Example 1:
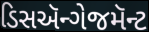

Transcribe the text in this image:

ડિસઍન્ગેજમૅન્ટ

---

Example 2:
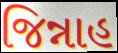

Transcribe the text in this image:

જિન્નાહ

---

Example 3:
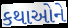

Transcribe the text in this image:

કથાઓને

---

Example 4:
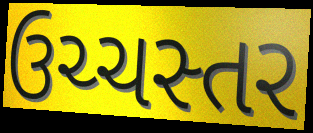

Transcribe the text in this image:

ઉચ્ચસ્તર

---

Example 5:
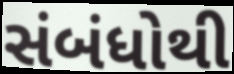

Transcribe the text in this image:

સંબંધોથી